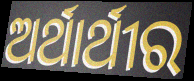
ଅର୍ଥାର୍ଥୀର